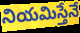
నియమిస్తేనే